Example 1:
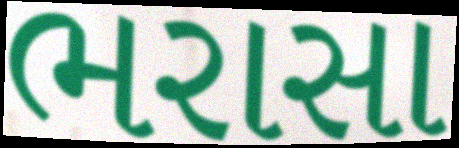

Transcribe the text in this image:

ભરાસા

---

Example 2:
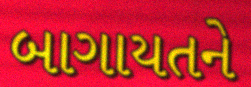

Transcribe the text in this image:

બાગાયતને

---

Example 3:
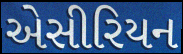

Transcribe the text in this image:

એસીરિયન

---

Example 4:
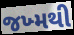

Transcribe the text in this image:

જખ્મથી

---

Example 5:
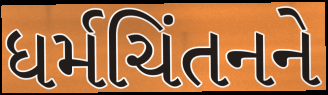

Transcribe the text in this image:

ધર્મચિંતનને